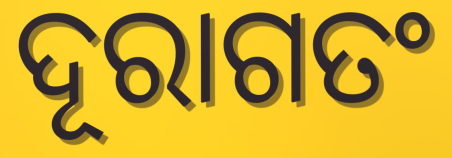
ଦୂରାଗତଂ